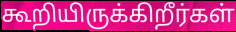
கூறியிருக்கிறீர்கள்